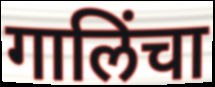
गालिंचा